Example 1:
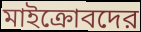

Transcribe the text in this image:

মাইক্রোবদের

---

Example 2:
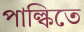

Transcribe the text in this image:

পাল্কিতে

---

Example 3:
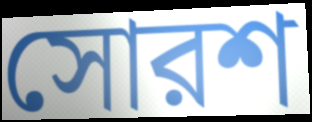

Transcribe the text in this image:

সোরশ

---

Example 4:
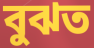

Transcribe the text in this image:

বুঝত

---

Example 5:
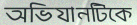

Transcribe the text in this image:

অভিযানটিকে